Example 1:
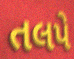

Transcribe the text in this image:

તલપે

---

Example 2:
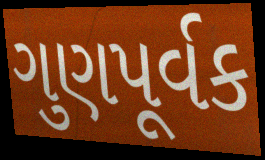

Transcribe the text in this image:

ગુણપૂર્વક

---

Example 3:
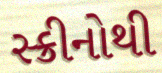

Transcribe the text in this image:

સ્ક્રીનોથી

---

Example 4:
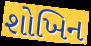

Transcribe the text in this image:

શોખિન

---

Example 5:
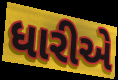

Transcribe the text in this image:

ધારીએ